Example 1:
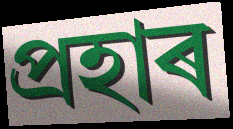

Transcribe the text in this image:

প্ৰহাৰ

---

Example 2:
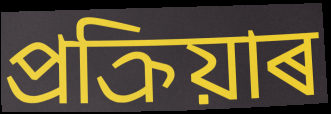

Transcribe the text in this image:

প্ৰক্ৰিয়াৰ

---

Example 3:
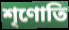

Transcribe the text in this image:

শৃণোতি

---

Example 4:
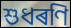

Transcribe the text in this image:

শুধৰণি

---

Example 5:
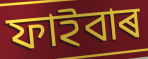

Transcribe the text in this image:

ফাইবাৰ